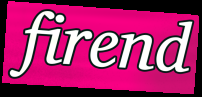
firend